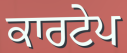
ਕਾਰਟੇਪ